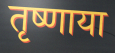
तृष्णाया